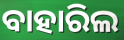
ବାହାରିଲ